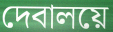
দেবালয়ে